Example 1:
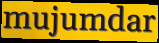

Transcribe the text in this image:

mujumdar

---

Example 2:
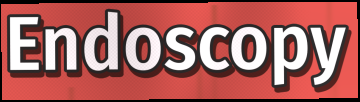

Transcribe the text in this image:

Endoscopy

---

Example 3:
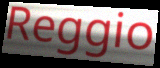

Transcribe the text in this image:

Reggio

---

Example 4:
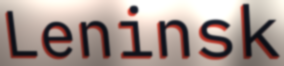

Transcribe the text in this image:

Leninsk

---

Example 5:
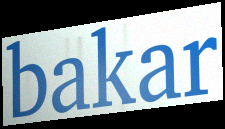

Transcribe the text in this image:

bakar